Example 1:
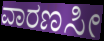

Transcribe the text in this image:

ವಾರಣಸೀ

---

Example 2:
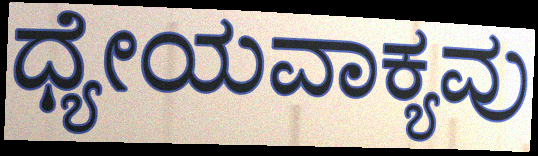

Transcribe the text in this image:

ಧ್ಯೇಯವಾಕ್ಯವು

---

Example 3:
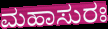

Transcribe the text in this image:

ಮಹಾಸುರಃ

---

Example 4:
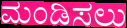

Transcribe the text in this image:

ಮಂಡಿಸಲು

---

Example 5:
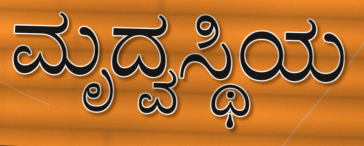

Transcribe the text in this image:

ಮೃದ್ವಸ್ಥಿಯ